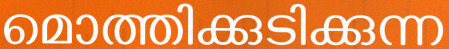
മൊത്തിക്കുടിക്കുന്ന